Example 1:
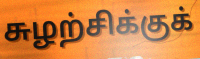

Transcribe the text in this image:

சுழற்சிக்குக்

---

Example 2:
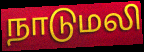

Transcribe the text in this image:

நாடுமலி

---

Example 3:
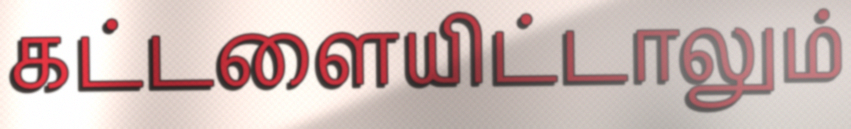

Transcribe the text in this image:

கட்டளையிட்டாலும்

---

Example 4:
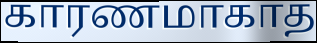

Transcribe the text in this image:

காரணமாகாத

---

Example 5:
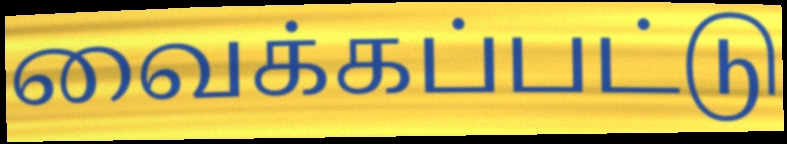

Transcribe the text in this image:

வைக்கப்பட்டு